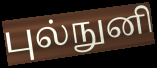
புல்நுனி